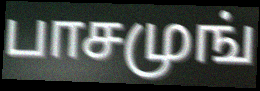
பாசமுங்